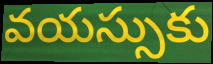
వయస్సుకు